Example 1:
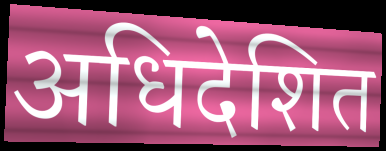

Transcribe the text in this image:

अधिदेशित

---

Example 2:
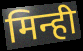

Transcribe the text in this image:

मिन्ही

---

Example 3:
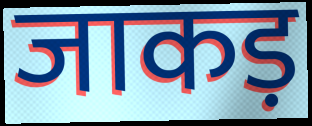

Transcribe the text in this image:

जाकड़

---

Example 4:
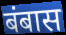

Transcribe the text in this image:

बंबास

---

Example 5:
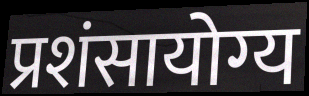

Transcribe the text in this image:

प्रशंसायोग्य